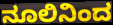
ನೂಲಿನಿಂದ